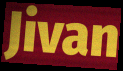
Jivan